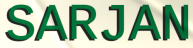
SARJAN